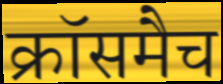
क्रॉसमैच